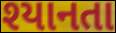
શ્યાનતા